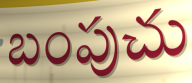
బంపుచు